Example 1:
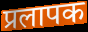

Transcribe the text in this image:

प्रलापक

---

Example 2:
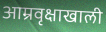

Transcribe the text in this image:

आम्रवृक्षाखाली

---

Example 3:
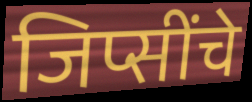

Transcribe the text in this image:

जिप्सींचे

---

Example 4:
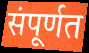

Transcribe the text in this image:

संपूर्णत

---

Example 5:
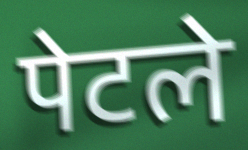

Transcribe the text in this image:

पेटले